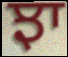
ਝਾ